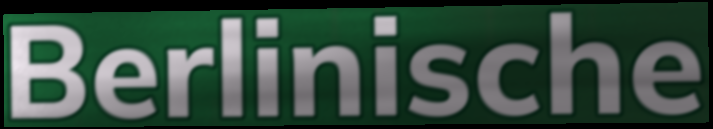
Berlinische